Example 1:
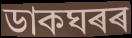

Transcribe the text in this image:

ডাকঘৰৰ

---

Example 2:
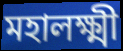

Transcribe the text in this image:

মহালক্ষ্মী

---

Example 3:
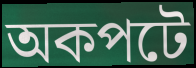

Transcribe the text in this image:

অকপটে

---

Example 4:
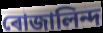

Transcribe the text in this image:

ৰোজালিন্দ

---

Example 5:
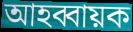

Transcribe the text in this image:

আহব্বায়ক